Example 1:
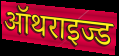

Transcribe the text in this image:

ऑथराइज्ड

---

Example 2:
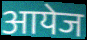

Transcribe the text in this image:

आयेज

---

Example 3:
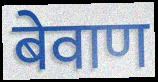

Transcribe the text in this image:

बेवाण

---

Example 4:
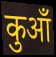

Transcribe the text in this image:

कुआँ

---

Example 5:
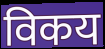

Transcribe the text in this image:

विकय